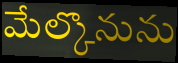
మేల్కొనును